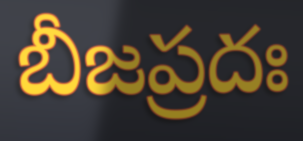
బీజప్రదః